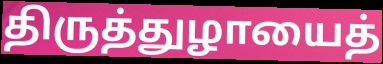
திருத்துழாயைத்